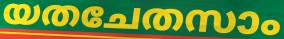
യതചേതസാം